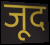
जूद